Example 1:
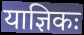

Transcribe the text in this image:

याज्ञिकः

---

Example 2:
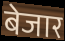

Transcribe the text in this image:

बेजार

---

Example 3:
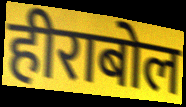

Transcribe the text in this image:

हीराबोल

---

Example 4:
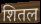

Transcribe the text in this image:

शितल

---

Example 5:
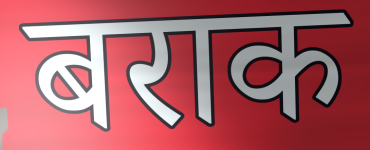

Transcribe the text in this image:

बराक